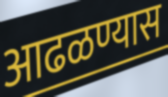
आढळण्यास